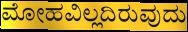
ಮೋಹವಿಲ್ಲದಿರುವುದು